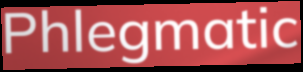
Phlegmatic